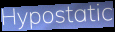
Hypostatic